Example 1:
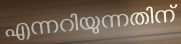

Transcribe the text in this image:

എന്നറിയുന്നതിന്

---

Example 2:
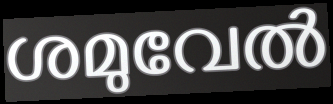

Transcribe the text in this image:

ശമുവേൽ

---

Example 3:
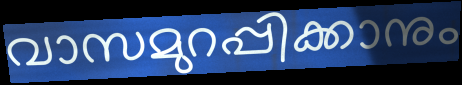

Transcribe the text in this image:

വാസമുറപ്പിക്കാനും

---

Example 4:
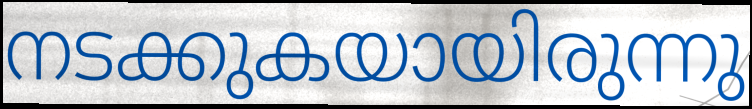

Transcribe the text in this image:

നടക്കുകയായിരുന്നു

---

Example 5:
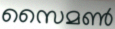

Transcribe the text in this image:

സൈമൺ